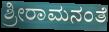
ಶ್ರೀರಾಮನಂತೆ